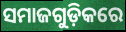
ସମାଜଗୁଡ଼ିକରେ